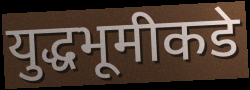
युद्धभूमीकडे